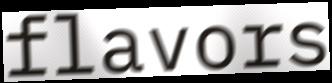
flavors